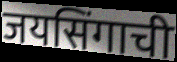
जयसिंगाची